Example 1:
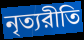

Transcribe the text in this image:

নৃত্যরীতি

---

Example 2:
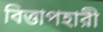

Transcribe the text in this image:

বিত্তাপহারী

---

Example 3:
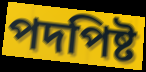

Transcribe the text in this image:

পদপিষ্ট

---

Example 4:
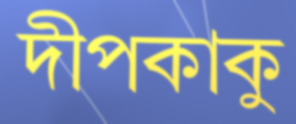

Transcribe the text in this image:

দীপকাকু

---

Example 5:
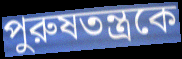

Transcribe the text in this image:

পুরুষতন্ত্রকে